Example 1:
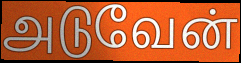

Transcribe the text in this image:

அடுவேன்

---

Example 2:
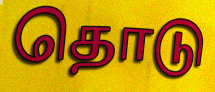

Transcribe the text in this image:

தொடு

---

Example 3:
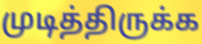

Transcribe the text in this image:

முடித்திருக்க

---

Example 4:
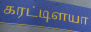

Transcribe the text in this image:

கரட்டிளயா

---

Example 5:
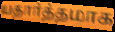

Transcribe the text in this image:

யதார்த்தமாக